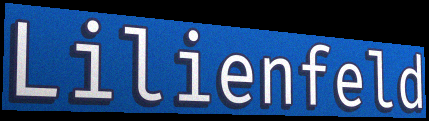
Lilienfeld